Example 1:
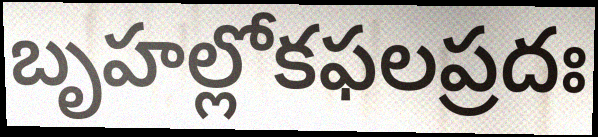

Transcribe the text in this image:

బృహల్లోకఫలప్రదః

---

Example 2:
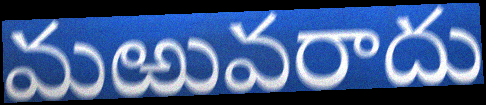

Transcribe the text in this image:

మఱువరాదు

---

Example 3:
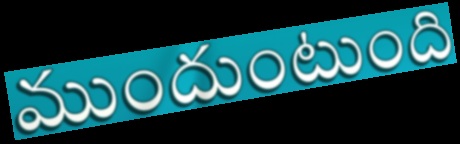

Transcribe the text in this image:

ముందుంటుంది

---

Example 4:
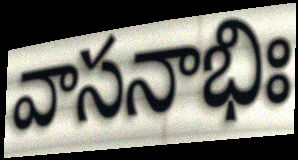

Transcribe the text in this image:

వాసనాభిః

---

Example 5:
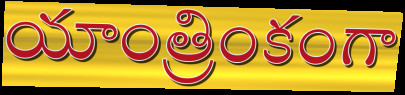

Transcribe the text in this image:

యాంత్రింకంగా